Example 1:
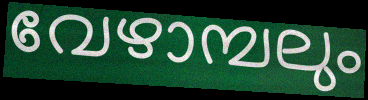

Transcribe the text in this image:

വേഴാമ്പലും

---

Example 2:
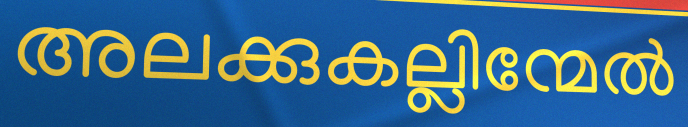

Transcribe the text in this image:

അലക്കുകല്ലിന്മേൽ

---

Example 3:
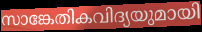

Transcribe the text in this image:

സാങ്കേതികവിദ്യയുമായി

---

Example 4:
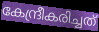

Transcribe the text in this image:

കേന്ദ്രീകരിച്ചത്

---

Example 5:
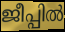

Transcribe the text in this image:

ജീപ്പിൽ